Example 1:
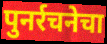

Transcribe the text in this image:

पुनर्रचनेचा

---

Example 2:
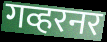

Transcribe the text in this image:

गव्हरनर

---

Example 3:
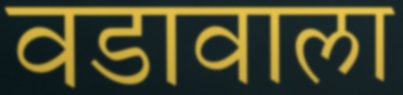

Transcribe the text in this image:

वडावाला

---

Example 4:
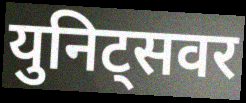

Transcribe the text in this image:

युनिट्सवर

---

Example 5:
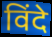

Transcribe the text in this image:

विंदे